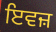
ਇਵਜ਼